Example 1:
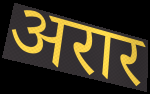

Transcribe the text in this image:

अरार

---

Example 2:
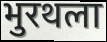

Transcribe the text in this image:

भुरथला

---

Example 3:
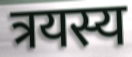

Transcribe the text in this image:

त्रयस्य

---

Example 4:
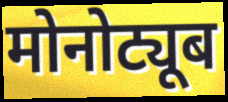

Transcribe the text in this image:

मोनोट्यूब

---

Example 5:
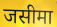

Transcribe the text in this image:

जसीमा